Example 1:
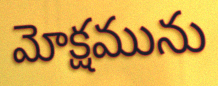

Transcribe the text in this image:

మోక్షమును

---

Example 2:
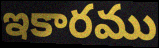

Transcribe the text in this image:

ఇకారము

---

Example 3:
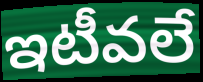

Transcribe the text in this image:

ఇటీవలే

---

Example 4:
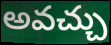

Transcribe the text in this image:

అవచ్చు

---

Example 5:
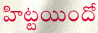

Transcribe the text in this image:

హిట్టయిందో